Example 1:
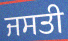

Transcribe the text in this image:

ਜਸਤੀ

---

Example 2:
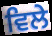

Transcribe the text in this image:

ਵਿਲੇ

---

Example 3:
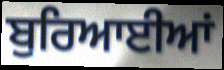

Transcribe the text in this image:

ਬੁਰਿਆਈਆਂ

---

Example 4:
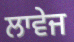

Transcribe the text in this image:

ਲਾਵੇਜ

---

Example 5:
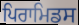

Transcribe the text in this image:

ਪਿਰਾਮਿਡਸ